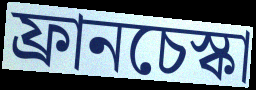
ফ্রানচেস্কা